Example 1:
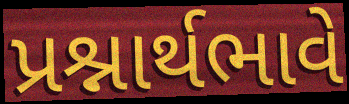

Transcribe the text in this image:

પ્રશ્નાર્થભાવે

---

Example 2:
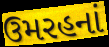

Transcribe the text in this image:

ઉમરહનાં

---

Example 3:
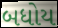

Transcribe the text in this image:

બધોય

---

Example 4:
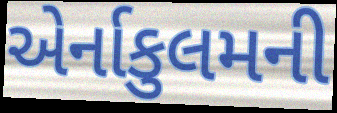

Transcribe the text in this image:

એર્નાકુલમની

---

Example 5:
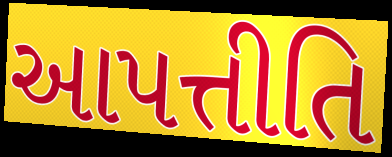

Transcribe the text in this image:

આપત્તીતિ